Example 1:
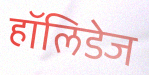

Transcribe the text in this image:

हॉलिडेज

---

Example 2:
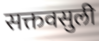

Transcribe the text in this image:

सक्तवसुली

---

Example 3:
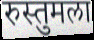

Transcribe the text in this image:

रुस्तुमला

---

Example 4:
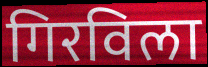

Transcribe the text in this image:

गिरविला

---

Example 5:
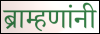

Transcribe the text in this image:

ब्राम्हणांनी